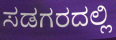
ಸಡಗರದಲ್ಲಿ